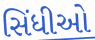
સિંધીઓ